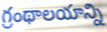
గ్రంథాలయాన్ని